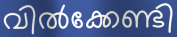
വിൽക്കേണ്ടി